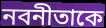
নবনীতাকে